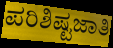
ಪರಿಶಿಷ್ಟಜಾತಿ